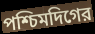
পশ্চিমদিগের